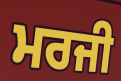
ਮਰਜੀ